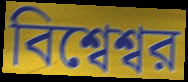
বিশ্বেশ্বর